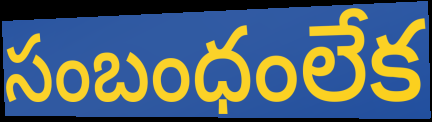
సంబంధంలేక